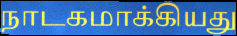
நாடகமாக்கியது